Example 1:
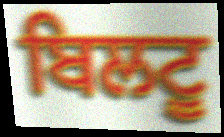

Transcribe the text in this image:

ਬਿਲਟੂ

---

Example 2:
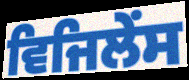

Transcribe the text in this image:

ਵਿਜਿਲੇਂਸ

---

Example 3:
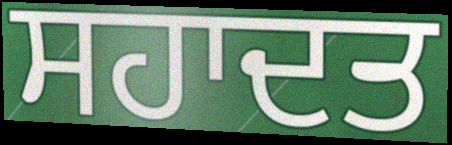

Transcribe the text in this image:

ਸਹਾਦਤ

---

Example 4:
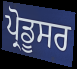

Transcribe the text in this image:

ਪ੍ਰੋਡੂਸਰ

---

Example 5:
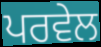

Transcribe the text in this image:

ਪਰਵੇਲ